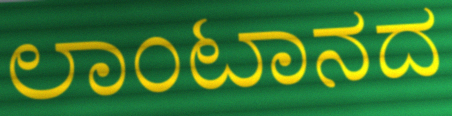
ಲಾಂಟಾನದ